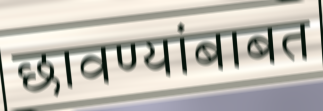
छावण्यांबाबत